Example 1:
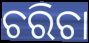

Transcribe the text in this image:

ଚରିଚା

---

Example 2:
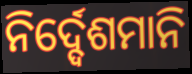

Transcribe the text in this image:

ନିର୍ଦ୍ଦେଶମାନି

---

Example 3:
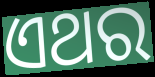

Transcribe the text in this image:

ଏଥର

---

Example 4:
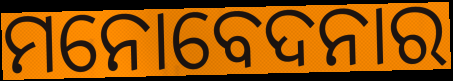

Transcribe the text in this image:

ମନୋବେଦନାର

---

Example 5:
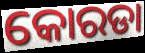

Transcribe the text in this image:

କୋରଡା